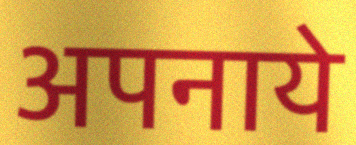
अपनाये